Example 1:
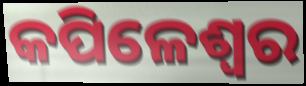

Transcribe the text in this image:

କପିଳେଶ୍ଵର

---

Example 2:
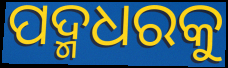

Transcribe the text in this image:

ପଦ୍ମଧରକୁ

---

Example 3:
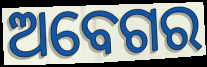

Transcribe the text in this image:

ଅବେଗର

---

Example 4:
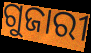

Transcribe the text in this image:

ଗୁଜାରୀ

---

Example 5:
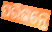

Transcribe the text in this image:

ପରିଜନ୍ତେ